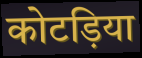
कोटड़िया